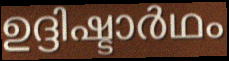
ഉദ്ദിഷ്ടാർഥം